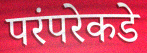
परंपरेकडे